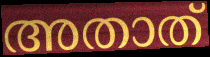
അതാത്